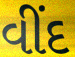
વીંદ